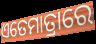
ଏତେମାତ୍ରାରେ